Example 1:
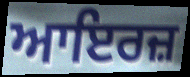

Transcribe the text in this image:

ਆਇਰਜ਼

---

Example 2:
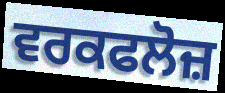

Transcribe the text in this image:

ਵਰਕਫਲੋਜ਼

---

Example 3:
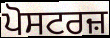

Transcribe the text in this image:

ਪੋਸਟਰਜ਼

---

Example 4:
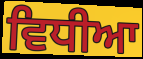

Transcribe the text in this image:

ਵਿਧੀਆ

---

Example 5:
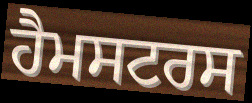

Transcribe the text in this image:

ਹੈਮਸਟਰਸ